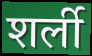
शर्ली